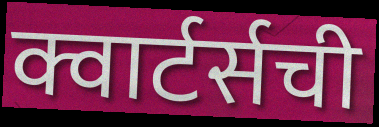
क्वार्टर्सची